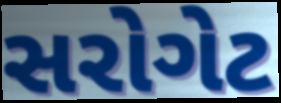
સરોગેટ